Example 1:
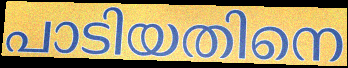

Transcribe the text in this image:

പാടിയതിനെ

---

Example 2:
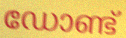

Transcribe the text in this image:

ഡോണ്ട്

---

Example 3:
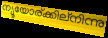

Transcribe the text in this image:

ന്യൂയോര്ക്കില്നിന്നു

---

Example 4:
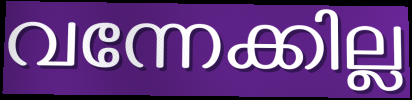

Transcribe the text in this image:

വന്നേക്കില്ല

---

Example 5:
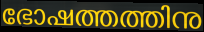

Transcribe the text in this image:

ഭോഷത്തത്തിനു